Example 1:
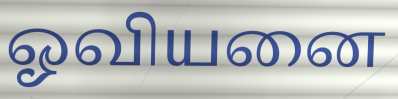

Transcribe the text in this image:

ஓவியனை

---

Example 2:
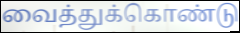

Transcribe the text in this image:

வைத்துக்கொண்டு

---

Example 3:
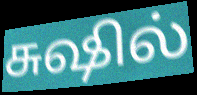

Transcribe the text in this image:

சுஷில்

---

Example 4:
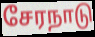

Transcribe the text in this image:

சேரநாடு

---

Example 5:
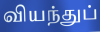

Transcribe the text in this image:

வியந்துப்